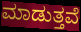
ಮಾಡುತ್ತವೆ